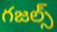
గజల్స్